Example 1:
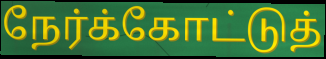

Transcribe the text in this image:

நேர்க்கோட்டுத்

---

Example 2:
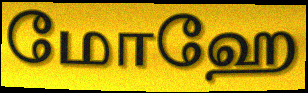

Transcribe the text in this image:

மோஹே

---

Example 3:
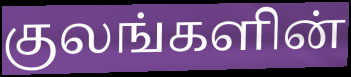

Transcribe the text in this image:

குலங்களின்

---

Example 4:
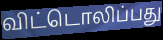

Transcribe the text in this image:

விட்டொலிப்பது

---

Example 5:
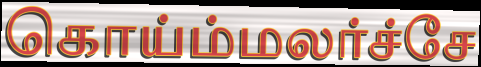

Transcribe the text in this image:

கொய்ம்மலர்ச்சே